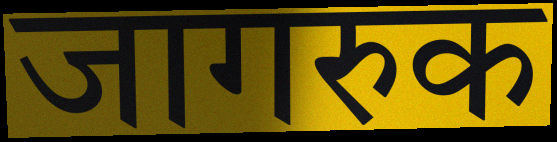
जागरुक